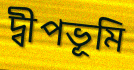
দ্বীপভূমি